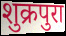
शुक्रपुरा